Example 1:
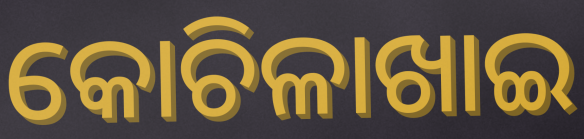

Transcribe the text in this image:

କୋଚିଳାଖାଇ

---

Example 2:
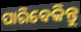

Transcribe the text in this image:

ପାରିବେକିନ୍ତୁ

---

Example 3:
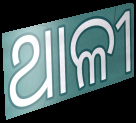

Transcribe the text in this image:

ଥାଳୀ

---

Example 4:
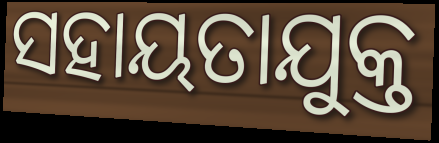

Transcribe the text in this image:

ସହାୟତାଯୁକ୍ତ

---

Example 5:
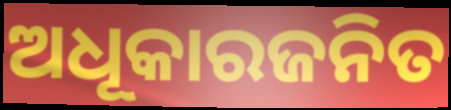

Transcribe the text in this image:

ଅଧୂକାରଜନିତ